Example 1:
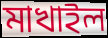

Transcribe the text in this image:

মাখাইল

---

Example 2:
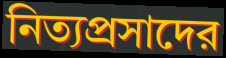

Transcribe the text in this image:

নিত্যপ্রসাদের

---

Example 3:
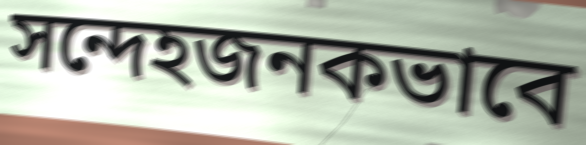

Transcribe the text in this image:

সন্দেহজনকভাবে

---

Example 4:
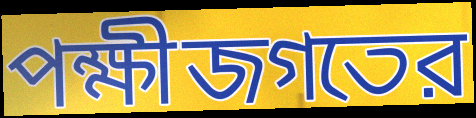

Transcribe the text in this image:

পক্ষীজগতের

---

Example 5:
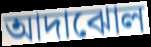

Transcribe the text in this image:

আদাঝোল